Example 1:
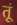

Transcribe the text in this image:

तूं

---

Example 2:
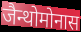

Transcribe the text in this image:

जैन्थोमोनास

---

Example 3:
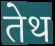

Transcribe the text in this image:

तेथ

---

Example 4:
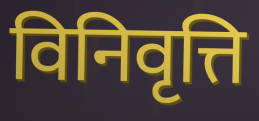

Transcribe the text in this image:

विनिवृत्ति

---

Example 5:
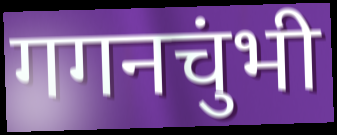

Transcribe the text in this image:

गगनचुंभी